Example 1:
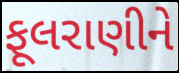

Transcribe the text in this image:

ફૂલરાણીને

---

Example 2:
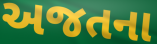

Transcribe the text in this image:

અજતના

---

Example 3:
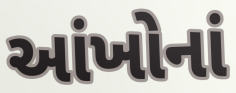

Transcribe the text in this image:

આંખોનાં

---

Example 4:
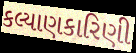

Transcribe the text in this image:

કલ્યાણકારિણી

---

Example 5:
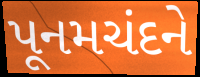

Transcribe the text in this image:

પૂનમચંદને